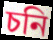
চনি